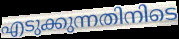
എടുക്കുന്നതിനിടെ